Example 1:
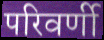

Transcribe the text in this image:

परिवर्णी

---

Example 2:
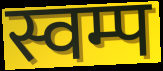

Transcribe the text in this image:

स्वम्प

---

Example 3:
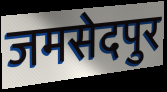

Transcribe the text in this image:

जमसेदपुर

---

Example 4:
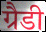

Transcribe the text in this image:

ग्रैडी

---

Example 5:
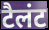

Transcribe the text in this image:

टैलंट